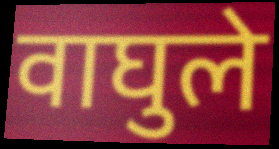
वाघुले